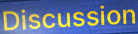
Discussion